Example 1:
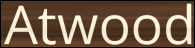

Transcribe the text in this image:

Atwood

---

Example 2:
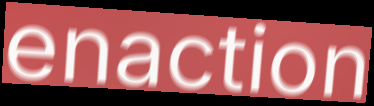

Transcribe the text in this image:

enaction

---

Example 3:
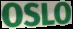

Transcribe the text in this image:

OSLO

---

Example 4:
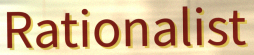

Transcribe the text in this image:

Rationalist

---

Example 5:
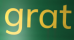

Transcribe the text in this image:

grat